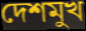
দেশমুখ